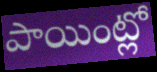
పాయింట్లో